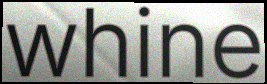
whine